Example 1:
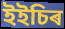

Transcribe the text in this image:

ইইচিৰ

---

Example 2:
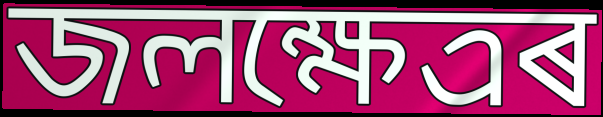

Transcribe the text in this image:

জলক্ষেত্ৰৰ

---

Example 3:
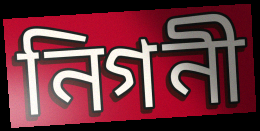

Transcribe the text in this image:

নিগনী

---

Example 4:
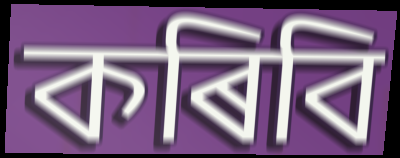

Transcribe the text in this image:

কৰিবি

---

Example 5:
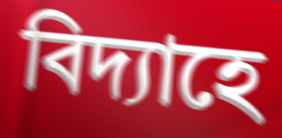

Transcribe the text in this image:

বিদ্যাহে